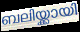
ബലിയ്ക്കായി